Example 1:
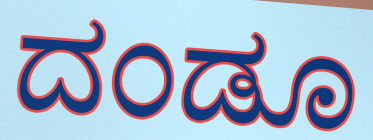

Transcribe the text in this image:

ದಂಡೂ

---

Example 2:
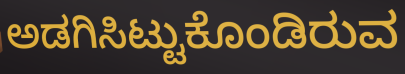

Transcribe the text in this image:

ಅಡಗಿಸಿಟ್ಟುಕೊಂಡಿರುವ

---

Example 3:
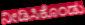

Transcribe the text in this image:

ನೀಡಿಸಿಕೊಂಡು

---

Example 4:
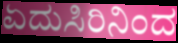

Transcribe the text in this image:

ಏದುಸಿರಿನಿಂದ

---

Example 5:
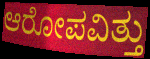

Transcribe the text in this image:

ಆರೋಪವಿತ್ತು